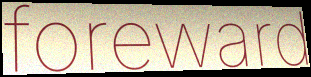
foreward